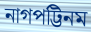
নাগপট্টিনম